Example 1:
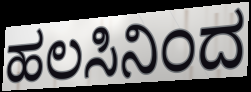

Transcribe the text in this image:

ಹಲಸಿನಿಂದ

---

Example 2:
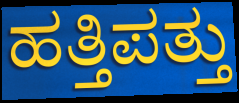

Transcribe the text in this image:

ಹತ್ತಿಪತ್ತು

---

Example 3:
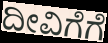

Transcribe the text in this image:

ದೀವಿಗೆಗೆ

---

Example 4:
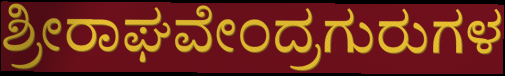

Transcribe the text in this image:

ಶ್ರೀರಾಘವೇಂದ್ರಗುರುಗಳ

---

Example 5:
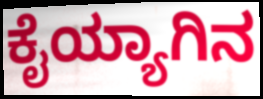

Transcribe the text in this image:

ಕೈಯ್ಯಾಗಿನ